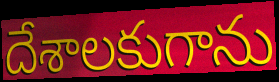
దేశాలకుగాను